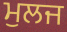
ਮੁਲਜ